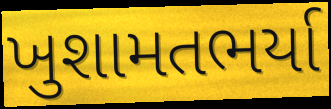
ખુશામતભર્યા